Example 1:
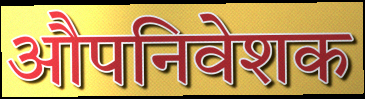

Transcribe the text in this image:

औपनिवेशक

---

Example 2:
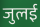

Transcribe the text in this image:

जुलई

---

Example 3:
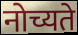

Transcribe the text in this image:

नोच्यते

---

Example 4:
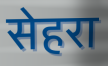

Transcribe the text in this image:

सेहरा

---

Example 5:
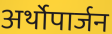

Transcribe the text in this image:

अर्थोपार्जन